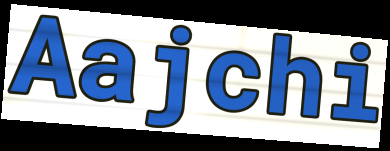
Aajchi